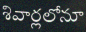
శివార్లలోనూ